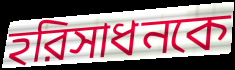
হরিসাধনকে